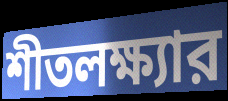
শীতলক্ষ্যার